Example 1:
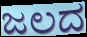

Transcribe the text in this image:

ಜಲದ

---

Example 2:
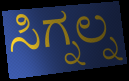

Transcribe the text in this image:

ಸಿಗ್ನಲ್ನ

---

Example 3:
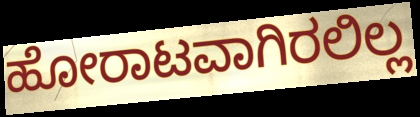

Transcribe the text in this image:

ಹೋರಾಟವಾಗಿರಲಿಲ್ಲ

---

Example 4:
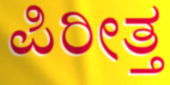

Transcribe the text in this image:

ಪಿರೀತ್ತ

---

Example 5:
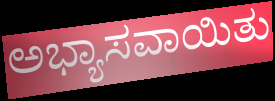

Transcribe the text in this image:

ಅಭ್ಯಾಸವಾಯಿತು